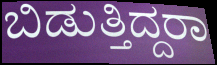
ಬಿಡುತ್ತಿದ್ದರಾ